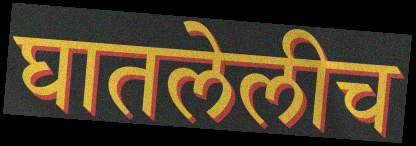
घातलेलीच